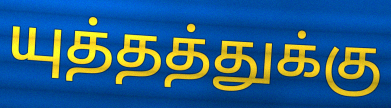
யுத்தத்துக்கு